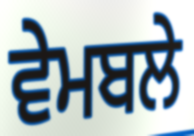
ਵੇਮਬਲੇ